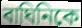
বাঘিনিকে